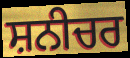
ਸ਼ਨੀਚਰ